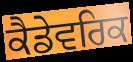
ਕੈਡੇਵਰਿਕ